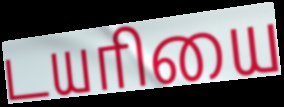
டயரியை